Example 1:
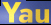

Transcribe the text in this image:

Yau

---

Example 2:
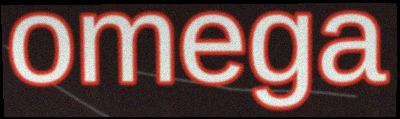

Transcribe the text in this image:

omega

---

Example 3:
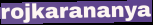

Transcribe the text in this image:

rojkarananya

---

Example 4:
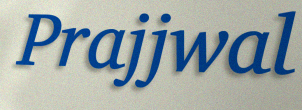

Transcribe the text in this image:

Prajjwal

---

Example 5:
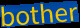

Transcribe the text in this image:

bother